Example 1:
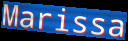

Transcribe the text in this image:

Marissa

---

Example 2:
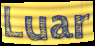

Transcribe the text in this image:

Luar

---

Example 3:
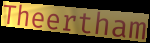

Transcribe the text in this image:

Theertham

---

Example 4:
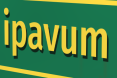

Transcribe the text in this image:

ipavum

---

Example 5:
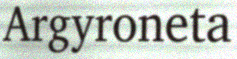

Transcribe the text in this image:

Argyroneta